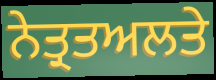
ਨੇਤ੍ਰਤਅਲਤੇ